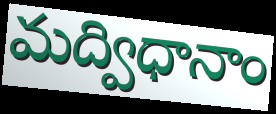
మద్విధానాం